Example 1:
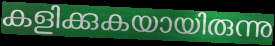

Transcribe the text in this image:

കളിക്കുകയായിരുന്നു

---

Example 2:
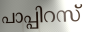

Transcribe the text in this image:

പാപ്പിറസ്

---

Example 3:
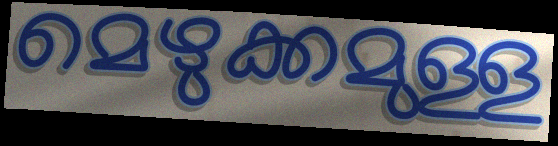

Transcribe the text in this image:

മെഴുക്കമുള്ള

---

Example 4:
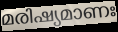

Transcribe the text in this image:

മരിഷ്യമാണഃ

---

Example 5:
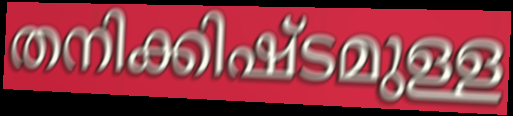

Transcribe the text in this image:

തനിക്കിഷ്ടമുള്ള